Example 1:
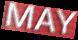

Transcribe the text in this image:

MAY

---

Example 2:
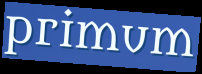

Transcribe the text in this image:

primum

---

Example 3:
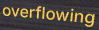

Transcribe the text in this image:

overflowing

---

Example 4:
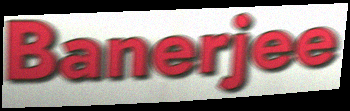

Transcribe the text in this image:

Banerjee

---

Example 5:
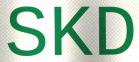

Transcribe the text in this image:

SKD